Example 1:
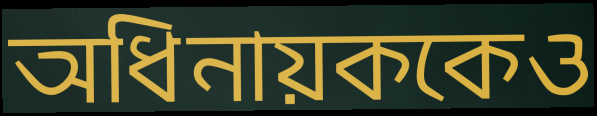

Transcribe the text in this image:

অধিনায়ককেও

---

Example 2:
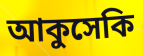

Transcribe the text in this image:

আকুসেকি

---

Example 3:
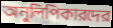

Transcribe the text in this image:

অনুলিপিকারদের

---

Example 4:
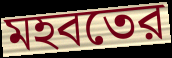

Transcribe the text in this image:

মহবতের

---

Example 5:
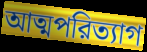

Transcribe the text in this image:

আত্মপরিত্যাগ